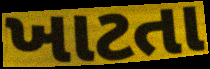
ખાટતા